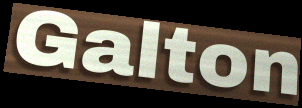
Galton